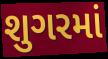
શુગરમાં